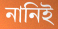
নানিই